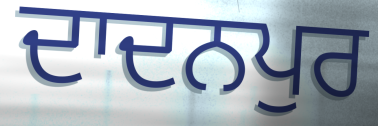
ਦਾਦਨਪੁਰ